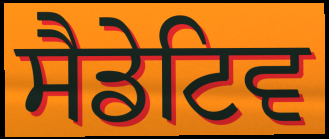
ਸੈਡੇਟਿਵ